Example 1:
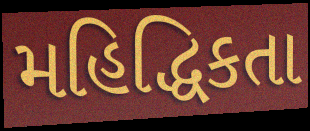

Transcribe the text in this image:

મહિદ્ધિકતા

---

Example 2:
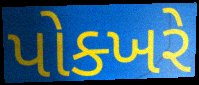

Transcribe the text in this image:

પોક્ખરે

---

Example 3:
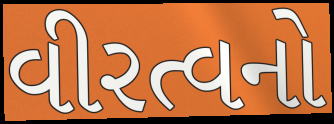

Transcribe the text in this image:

વીરત્વનો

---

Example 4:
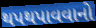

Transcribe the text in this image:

થપથપાવવાનો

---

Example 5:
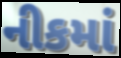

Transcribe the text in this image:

નીકમાં